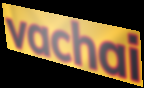
vachai